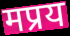
मप्रय